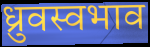
ध्रुवस्वभाव